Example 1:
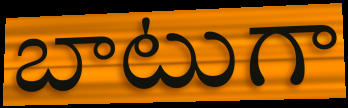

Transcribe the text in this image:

బాటుగా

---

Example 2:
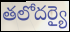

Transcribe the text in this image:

తలోదర్యై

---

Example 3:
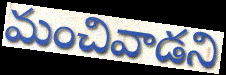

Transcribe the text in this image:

మంచివాడని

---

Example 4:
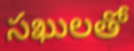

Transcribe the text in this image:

సఖులతో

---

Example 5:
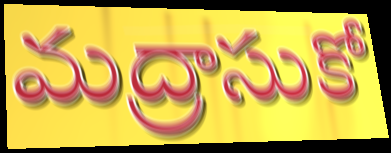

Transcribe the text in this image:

మద్రాసుకో